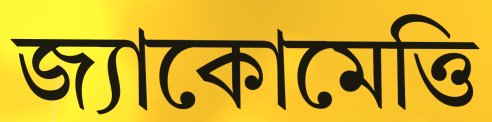
জ্যাকোমেত্তি